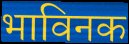
भाविनक